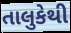
તાલુકેથી